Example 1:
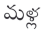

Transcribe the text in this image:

మళ్ల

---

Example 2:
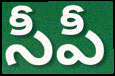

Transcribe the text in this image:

సీపీ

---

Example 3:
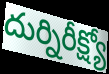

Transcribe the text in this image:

దుర్నిరీక్ష్యో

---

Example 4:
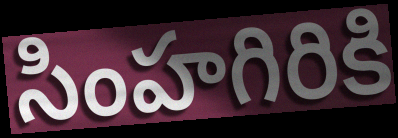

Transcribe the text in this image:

సింహగిరికి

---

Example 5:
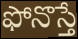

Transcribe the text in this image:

ఫోనొస్తే